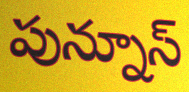
పున్నూస్